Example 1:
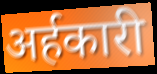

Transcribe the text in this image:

अर्हकारी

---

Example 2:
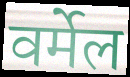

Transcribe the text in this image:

वर्मेल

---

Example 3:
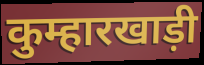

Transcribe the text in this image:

कुम्हारखाड़ी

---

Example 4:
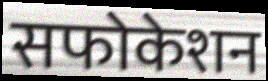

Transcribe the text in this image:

सफोकेशन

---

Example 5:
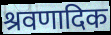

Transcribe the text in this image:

श्रवणादिक